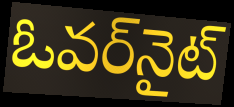
ఓవర్‌నైట్